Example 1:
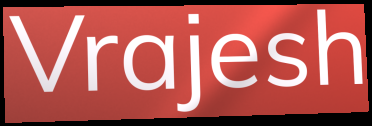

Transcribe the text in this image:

Vrajesh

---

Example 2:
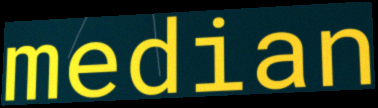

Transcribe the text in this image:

median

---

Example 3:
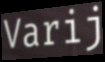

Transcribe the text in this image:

Varij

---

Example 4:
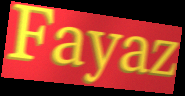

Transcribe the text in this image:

Fayaz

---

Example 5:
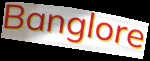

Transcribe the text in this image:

Banglore